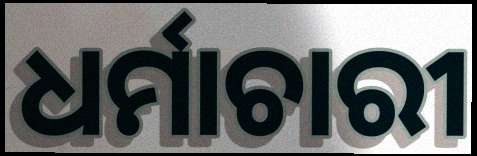
ଧର୍ମାଚାରୀ